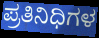
ಪ್ರತಿನಿಧಿಗಳ